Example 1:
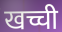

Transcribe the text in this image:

खच्ची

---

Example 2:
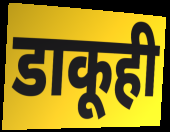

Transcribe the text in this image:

डाकूही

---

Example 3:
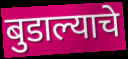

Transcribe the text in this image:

बुडाल्याचे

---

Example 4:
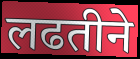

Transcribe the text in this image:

लढतीने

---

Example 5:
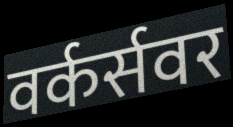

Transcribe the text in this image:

वर्कर्सवर